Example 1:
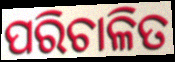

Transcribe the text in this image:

ପରିଚାଳିତ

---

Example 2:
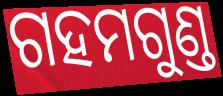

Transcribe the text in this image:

ଗହମଗୁଣ୍ଡ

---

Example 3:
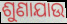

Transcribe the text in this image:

ଶୁଣାଯାଉ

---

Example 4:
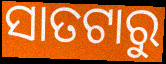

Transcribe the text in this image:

ସାତଟାରୁ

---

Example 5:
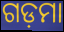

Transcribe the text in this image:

ଗଡ଼ମା